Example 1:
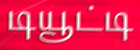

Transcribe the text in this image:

டியூட்டி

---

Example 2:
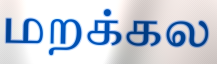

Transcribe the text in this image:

மறக்கல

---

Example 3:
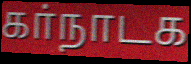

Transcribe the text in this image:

கர்நாடக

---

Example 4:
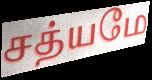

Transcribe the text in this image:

சத்யமே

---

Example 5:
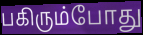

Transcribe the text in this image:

பகிரும்போது